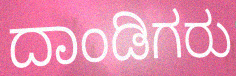
ದಾಂಡಿಗರು